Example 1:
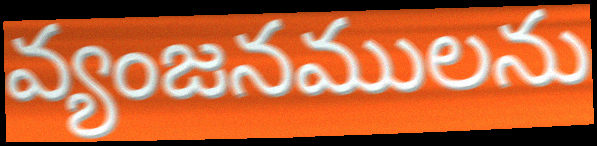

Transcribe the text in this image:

వ్యంజనములను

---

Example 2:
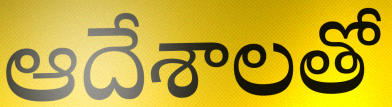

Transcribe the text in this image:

ఆదేశాలతో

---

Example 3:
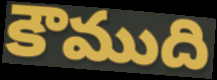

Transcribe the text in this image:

కౌముది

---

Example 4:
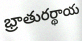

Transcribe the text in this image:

భ్రాతురర్థాయ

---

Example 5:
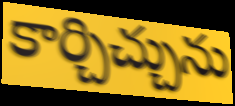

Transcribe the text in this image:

కార్చిచ్చును